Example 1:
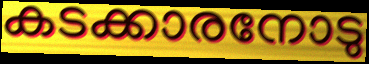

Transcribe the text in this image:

കടക്കാരനോടു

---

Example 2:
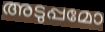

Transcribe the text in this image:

അടുപ്പമോ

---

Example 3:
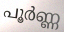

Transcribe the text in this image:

പൂർണ്ണ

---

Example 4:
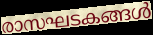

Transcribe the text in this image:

രാസഘടകങ്ങൾ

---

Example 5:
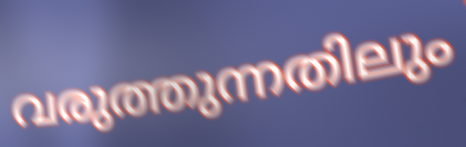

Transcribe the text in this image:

വരുത്തുന്നതിലും